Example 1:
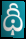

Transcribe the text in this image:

థీ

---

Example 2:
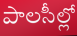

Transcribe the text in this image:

పాలసీల్లో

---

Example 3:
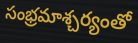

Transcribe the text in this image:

సంభ్రమాశ్చర్యంతో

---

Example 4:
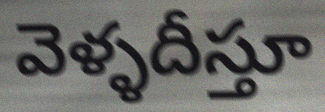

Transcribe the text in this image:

వెళ్ళదీస్తూ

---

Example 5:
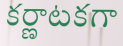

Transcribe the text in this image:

కర్ణాటకగా